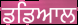
ਡਡਿਆਲ